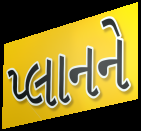
પ્લાનને